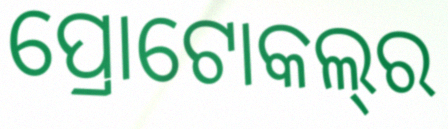
ପ୍ରୋଟୋକଲ୍‌ର